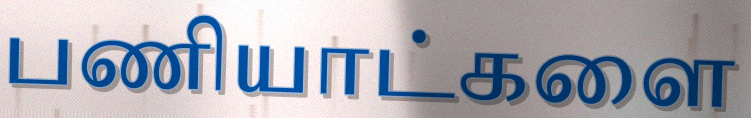
பணியாட்களை